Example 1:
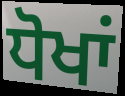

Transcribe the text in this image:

ਧੋਖਾਂ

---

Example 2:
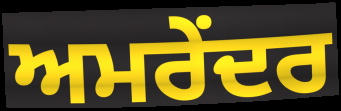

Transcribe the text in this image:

ਅਮਰੇਂਦਰ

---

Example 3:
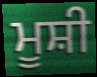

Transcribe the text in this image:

ਮੂਸ਼ੀ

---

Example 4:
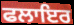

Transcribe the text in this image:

ਫਲਾਇਰ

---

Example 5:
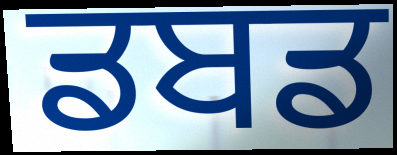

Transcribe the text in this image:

ਡਬਡ